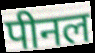
पीनल